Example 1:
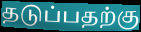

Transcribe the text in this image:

தடுப்பதற்கு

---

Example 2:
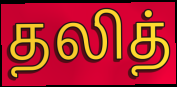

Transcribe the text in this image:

தலித்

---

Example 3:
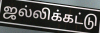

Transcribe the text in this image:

ஜல்லிக்கட்டு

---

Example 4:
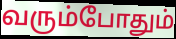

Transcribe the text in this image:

வரும்போதும்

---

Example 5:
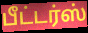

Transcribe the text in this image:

பீட்டர்ஸ்